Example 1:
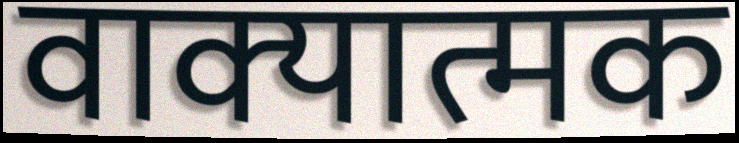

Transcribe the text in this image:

वाक्यात्मक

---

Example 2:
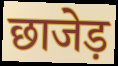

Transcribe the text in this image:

छाजेड़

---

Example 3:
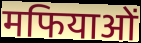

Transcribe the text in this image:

मफियाओं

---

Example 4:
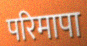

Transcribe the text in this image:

परिमापा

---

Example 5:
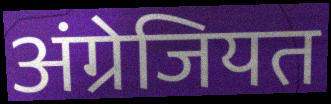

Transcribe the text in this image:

अंग्रेजियत